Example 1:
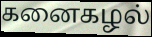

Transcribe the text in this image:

கனைகழல்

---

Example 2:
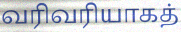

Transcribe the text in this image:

வரிவரியாகத்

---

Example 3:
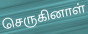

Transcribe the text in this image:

செருகினாள்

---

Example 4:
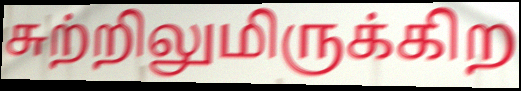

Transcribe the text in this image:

சுற்றிலுமிருக்கிற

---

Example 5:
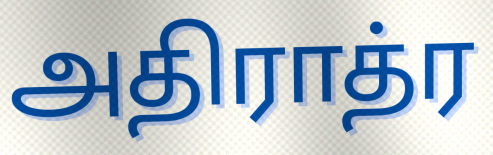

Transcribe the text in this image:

அதிராத்ர